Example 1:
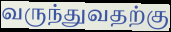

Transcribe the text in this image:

வருந்துவதற்கு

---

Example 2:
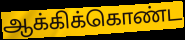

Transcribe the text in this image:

ஆக்கிக்கொண்ட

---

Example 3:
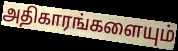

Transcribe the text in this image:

அதிகாரங்களையும்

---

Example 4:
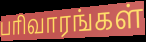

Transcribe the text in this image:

பரிவாரங்கள்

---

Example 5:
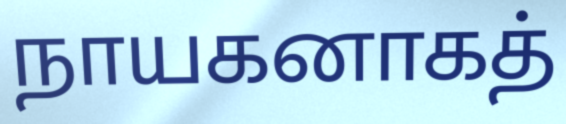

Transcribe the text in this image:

நாயகனாகத்